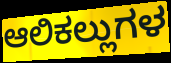
ಆಲಿಕಲ್ಲುಗಳ